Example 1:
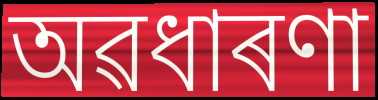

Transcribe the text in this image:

অৱধাৰণা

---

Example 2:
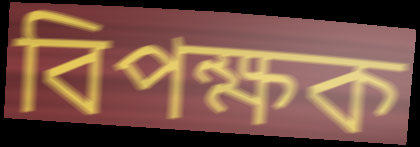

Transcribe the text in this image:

বিপক্ষক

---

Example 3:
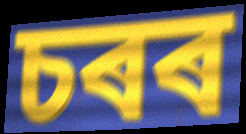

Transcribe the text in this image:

চৰৰ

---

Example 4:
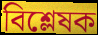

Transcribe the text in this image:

বিশ্লেষক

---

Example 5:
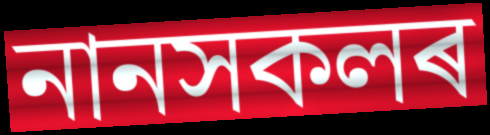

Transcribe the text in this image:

নানসকলৰ